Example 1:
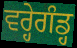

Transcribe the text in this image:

ਵਰ੍ਹੇਗੰਡ੍ਹ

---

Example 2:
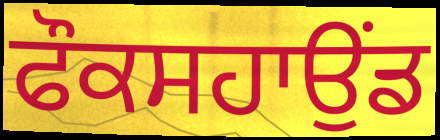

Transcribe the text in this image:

ਫੌਕਸਹਾਉਂਡ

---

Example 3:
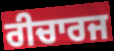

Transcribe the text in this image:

ਰੀਚਾਰਜ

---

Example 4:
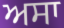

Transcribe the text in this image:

ਅਸਾ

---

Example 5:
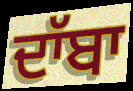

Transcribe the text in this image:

ਦਾੱਬਾ